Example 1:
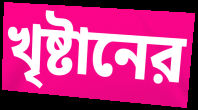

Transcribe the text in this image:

খৃষ্টানের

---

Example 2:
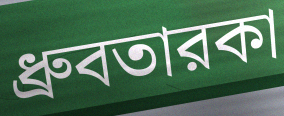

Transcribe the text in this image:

ধ্রুবতারকা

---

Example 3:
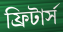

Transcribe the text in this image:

ফ্রিটার্স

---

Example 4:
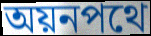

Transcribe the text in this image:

অয়নপথে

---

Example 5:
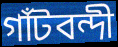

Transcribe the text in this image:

গাঁটবন্দী